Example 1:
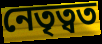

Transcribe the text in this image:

নেতৃত্বত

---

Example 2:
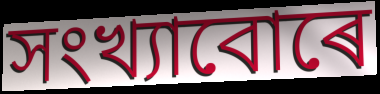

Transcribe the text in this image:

সংখ্যাবোৰে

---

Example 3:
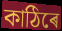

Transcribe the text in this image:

কাঠিৰে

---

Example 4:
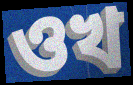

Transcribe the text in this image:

ওখ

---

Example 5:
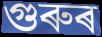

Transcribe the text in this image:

গুৰুৰ